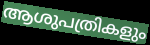
ആശുപത്രികളും